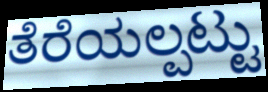
ತೆರೆಯಲ್ಪಟ್ಟು